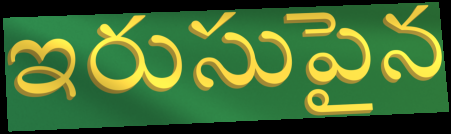
ఇరుసుపైన